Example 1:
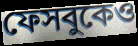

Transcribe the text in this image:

ফেসবুকেও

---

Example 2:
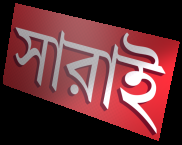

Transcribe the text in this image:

সারাই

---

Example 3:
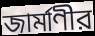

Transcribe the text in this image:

জার্মাণীর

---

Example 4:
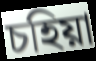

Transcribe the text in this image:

চহিয়া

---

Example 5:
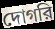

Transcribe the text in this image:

দোগরি